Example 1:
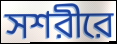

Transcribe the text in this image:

সশরীরে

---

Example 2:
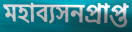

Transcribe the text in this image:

মহাব্যসনপ্রাপ্ত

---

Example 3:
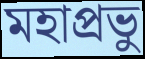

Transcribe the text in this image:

মহাপ্রভু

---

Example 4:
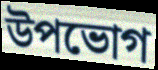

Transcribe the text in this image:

উপভোগ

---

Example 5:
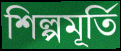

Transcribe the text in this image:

শিল্পমূর্তি